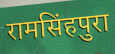
रामसिंहपुरा